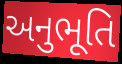
અનુભૂતિ